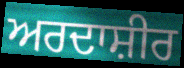
ਅਰਦਾਸ਼ੀਰ